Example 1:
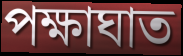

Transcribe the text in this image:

পক্ষাঘাত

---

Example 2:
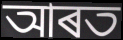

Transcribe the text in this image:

আৰত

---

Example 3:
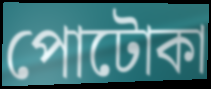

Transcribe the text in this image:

পোটোকা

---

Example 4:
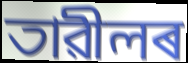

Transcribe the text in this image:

তাৱীলৰ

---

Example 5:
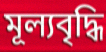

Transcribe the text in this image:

মূল্যবৃদ্ধি